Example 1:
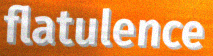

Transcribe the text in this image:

flatulence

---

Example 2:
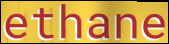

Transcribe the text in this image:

ethane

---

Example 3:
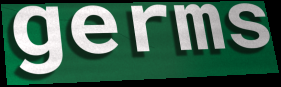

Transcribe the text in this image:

germs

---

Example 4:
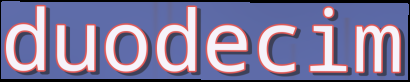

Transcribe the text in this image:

duodecim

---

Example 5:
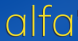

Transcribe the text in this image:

alfa